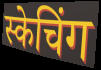
स्केचिंग